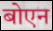
बोएन